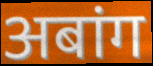
अबांग